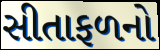
સીતાફળનો